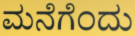
ಮನೆಗೆಂದು